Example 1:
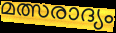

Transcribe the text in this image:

മത്സരാദ്യം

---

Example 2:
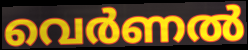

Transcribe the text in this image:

വെർണൽ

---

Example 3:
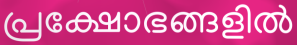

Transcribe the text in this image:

പ്രക്ഷോഭങ്ങളിൽ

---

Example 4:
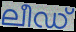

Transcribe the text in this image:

ലീഡ്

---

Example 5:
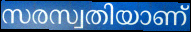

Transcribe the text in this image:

സരസ്വതിയാണ്